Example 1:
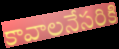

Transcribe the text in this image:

కావాలనేసరికి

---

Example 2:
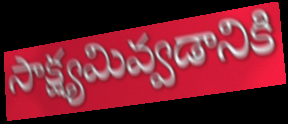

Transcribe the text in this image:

సాక్ష్యమివ్వడానికి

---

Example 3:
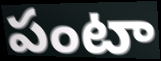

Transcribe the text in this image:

పంటా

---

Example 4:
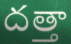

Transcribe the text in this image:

దత్తా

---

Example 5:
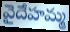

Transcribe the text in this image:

వైదేహమ్మ